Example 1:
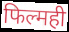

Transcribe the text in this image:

फिल्मही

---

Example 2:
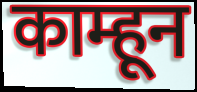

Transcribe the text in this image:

काम्हून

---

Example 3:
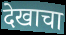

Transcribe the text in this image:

देखाचा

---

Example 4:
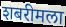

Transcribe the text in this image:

शबरीमला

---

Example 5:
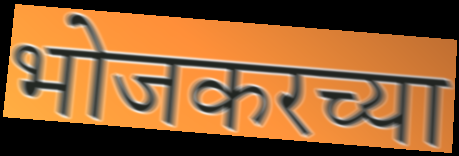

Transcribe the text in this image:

भोजकरच्या